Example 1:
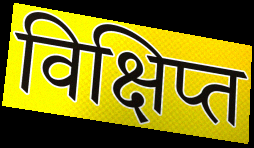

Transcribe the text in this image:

विक्षिप्त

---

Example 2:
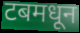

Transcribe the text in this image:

टबमधून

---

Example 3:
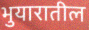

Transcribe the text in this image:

भुयारातील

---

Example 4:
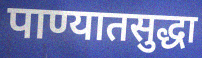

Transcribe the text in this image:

पाण्यातसुद्धा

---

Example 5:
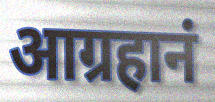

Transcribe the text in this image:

आग्रहानं